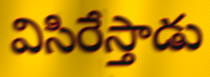
విసిరేస్తాడు